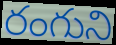
రంగుని